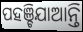
ପହଞ୍ଚିଯାଆନ୍ତି